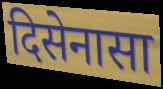
दिसेनासा